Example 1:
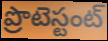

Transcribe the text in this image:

ప్రొటెస్టంట్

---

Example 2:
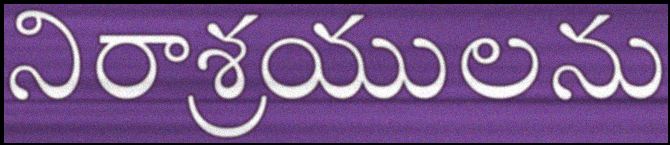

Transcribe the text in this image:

నిరాశ్రయులను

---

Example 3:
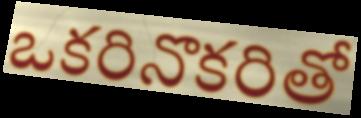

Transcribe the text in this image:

ఒకరినొకరితో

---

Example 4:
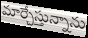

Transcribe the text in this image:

మార్చేస్తున్నాను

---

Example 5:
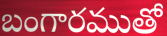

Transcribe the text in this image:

బంగారముతో